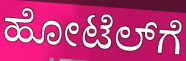
ಹೋಟೆಲ್‌ಗೆ